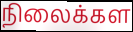
நிலைக்கள